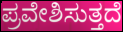
ಪ್ರವೇಶಿಸುತ್ತದೆ